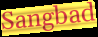
Sangbad